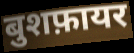
बुशफ़ायर